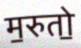
म॒रुतो॒